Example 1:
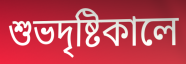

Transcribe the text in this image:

শুভদৃষ্টিকালে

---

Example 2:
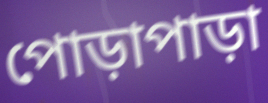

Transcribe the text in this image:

পোড়াপাড়া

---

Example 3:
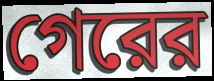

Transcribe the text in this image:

গেরের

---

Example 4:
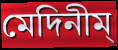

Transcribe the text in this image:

মেদিনীম্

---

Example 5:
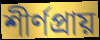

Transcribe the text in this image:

শীর্ণপ্রায়